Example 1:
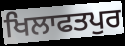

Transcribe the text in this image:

ਖਿਲਾਫਤਪੁਰ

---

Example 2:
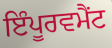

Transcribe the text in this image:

ਇੰਪੂਰਵਮੈਂਟ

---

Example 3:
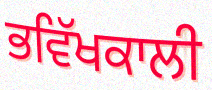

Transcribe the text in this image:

ਭਵਿੱਖਕਾਲੀ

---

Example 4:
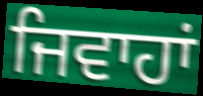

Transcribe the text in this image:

ਜਿਵਾਹਾਂ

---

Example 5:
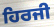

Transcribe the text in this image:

ਹਿਰਜੀ